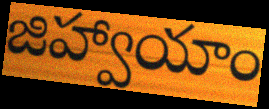
జిహ్వాయాం